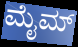
ಮೈಮ್